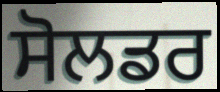
ਸੋਲਡਰ